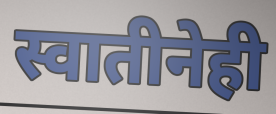
स्वातीनेही